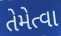
તેમેત્વા